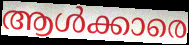
ആൾക്കാരെ